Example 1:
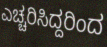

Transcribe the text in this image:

ಎಚ್ಚರಿಸಿದ್ದರಿಂದ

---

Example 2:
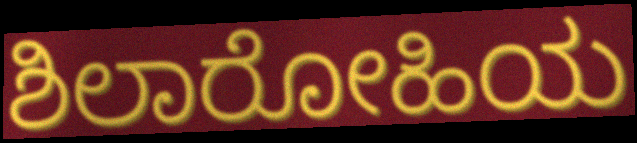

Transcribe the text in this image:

ಶಿಲಾರೋಹಿಯ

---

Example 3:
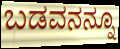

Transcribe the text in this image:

ಬಡವನನ್ನೂ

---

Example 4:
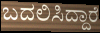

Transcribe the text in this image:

ಬದಲಿಸಿದ್ದಾರೆ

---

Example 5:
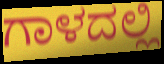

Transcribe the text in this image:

ಗಾಳದಲ್ಲಿ